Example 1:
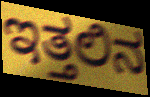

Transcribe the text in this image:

ಇತ್ತಲಿನ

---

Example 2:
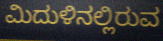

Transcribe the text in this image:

ಮಿದುಳಿನಲ್ಲಿರುವ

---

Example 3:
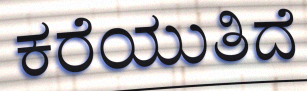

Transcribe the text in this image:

ಕರೆಯುತಿದೆ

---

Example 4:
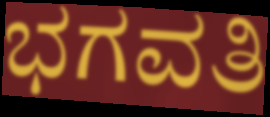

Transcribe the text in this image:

ಭಗವತಿ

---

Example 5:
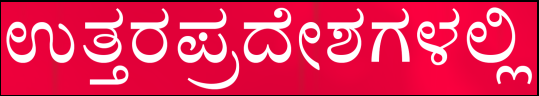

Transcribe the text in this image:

ಉತ್ತರಪ್ರದೇಶಗಳಲ್ಲಿ